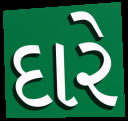
દારે